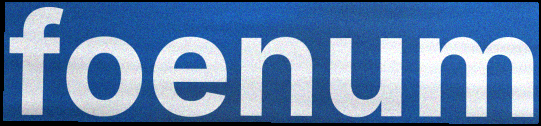
foenum